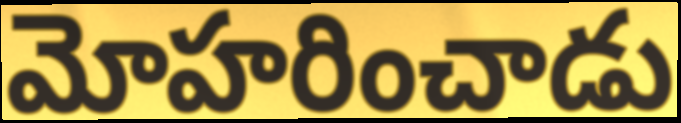
మోహరించాడు